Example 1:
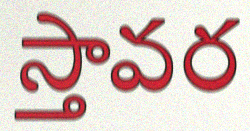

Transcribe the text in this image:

స్తావర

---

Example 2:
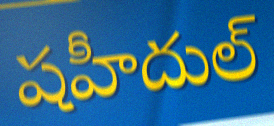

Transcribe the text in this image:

షహీదుల్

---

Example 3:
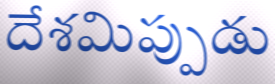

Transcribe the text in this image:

దేశమిప్పుడు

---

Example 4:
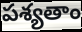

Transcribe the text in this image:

పశ్యతాం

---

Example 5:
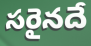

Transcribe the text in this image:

సరైనదే